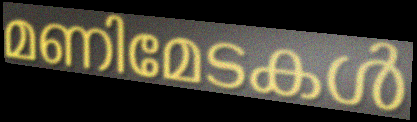
മണിമേടകൾ